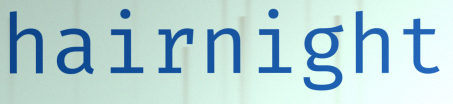
hairnight